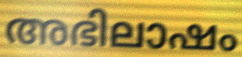
അഭിലാഷം